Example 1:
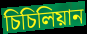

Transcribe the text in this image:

চিচিলিয়ান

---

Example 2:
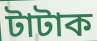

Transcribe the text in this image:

টাটাক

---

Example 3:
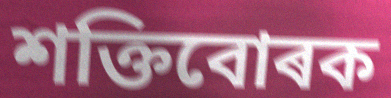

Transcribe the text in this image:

শক্তিবোৰক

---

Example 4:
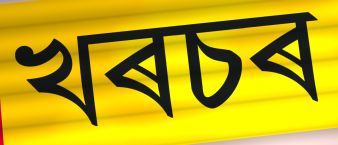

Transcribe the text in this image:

খৰচৰ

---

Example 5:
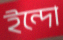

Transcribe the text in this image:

ইন্দো